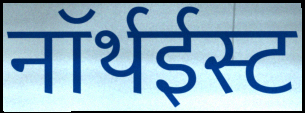
नॉर्थईस्ट